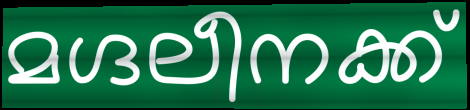
മഗ്ദലീനക്ക്